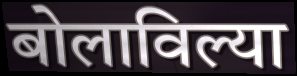
बोलाविल्या